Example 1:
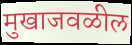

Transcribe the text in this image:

मुखाजवळील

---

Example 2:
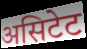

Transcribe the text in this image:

असिटेट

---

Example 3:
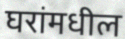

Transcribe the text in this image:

घरांमधील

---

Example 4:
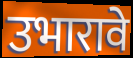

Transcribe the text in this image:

उभारावे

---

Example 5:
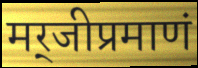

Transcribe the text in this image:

मर्जीप्रमाणं